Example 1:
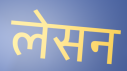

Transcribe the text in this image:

लेसन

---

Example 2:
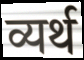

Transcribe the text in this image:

व्यर्थ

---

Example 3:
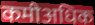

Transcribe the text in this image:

कमीअधिक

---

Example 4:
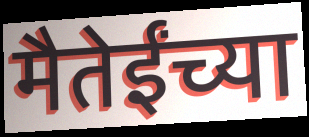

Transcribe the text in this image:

मैतेईंच्या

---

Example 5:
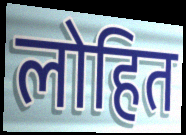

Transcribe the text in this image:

लोहित